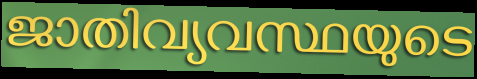
ജാതിവ്യവസ്ഥയുടെ